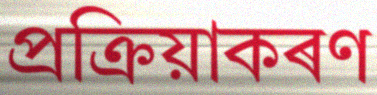
প্ৰক্ৰিয়াকৰণ